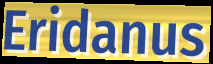
Eridanus